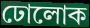
ঢোলোক